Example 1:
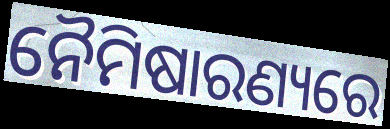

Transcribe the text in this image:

ନୈମିଷାରଣ୍ୟରେ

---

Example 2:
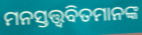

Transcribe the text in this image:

ମନସ୍ତତ୍ତ୍ୱବିତମାନଙ୍କ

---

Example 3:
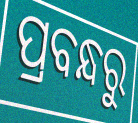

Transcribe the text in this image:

ପ୍ରବନ୍ଧରୁ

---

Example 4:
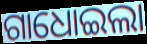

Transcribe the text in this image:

ଗାଧୋଇଲା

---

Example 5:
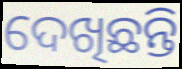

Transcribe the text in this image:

ଦେଖିଛନ୍ତି